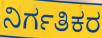
ನಿರ್ಗತಿಕರ